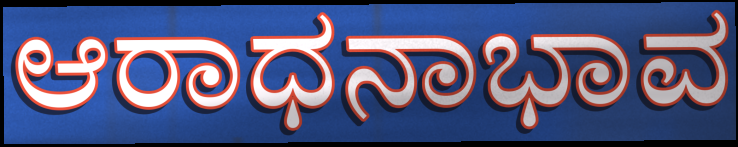
ಆರಾಧನಾಭಾವ